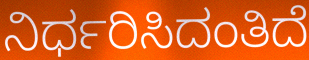
ನಿರ್ಧರಿಸಿದಂತಿದೆ